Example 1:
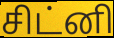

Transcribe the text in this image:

சிட்னி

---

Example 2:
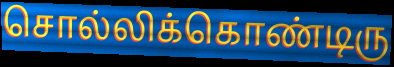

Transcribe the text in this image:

சொல்லிக்கொண்டிரு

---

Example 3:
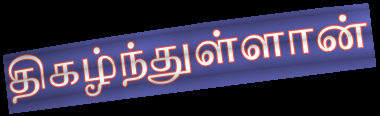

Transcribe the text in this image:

திகழ்ந்துள்ளான்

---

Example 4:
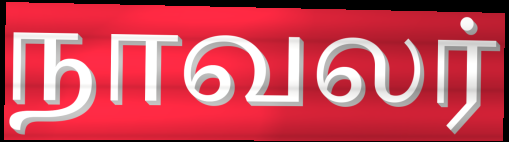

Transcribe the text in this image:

நாவலர்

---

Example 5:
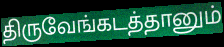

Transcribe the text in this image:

திருவேங்கடத்தானும்